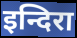
इन्दिरा